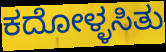
ಕದೋಳ್ಳಸಿತು